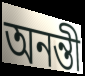
অনন্তী